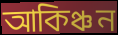
আকিঞ্চন